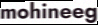
mohineeg